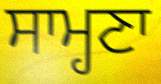
ਸਾਮ੍ਹਣਾ